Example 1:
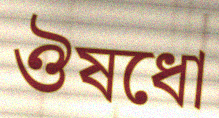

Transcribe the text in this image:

ঔষধো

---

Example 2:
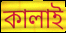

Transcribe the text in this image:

কালাই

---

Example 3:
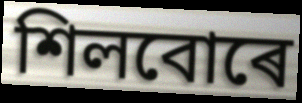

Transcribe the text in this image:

শিলবোৰে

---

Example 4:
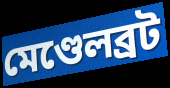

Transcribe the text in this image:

মেণ্ডেলব্ৰট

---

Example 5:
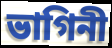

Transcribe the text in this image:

ভাগিনী